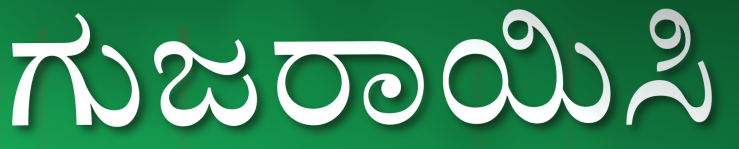
ಗುಜರಾಯಿಸಿ